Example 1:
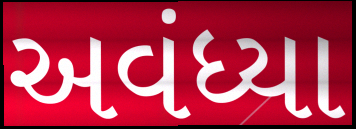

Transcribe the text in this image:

અવંધ્યા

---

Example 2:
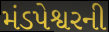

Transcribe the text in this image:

મંડપેશ્વરની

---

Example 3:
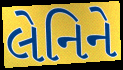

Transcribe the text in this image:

લેનિને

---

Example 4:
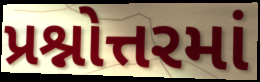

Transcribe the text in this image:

પ્રશ્નોત્તરમાં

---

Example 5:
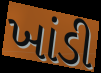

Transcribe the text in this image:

ખાંડી